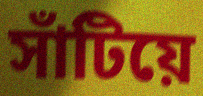
সাঁটিয়ে